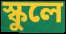
স্কুলে